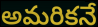
అమరికనే